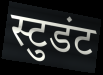
स्टुडंट